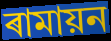
ৰামায়ন